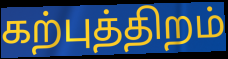
கற்புத்திறம்